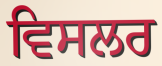
ਵਿਸਲਰ